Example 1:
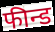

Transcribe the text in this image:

फीन्ड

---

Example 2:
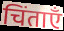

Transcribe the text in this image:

चिंताएँ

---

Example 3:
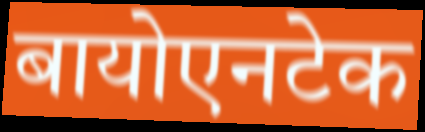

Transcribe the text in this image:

बायोएनटेक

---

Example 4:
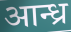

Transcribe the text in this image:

आन्ध्र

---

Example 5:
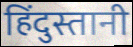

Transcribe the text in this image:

हिंदुस्तानी